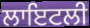
ਲਾਇਟਲੀ